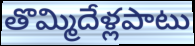
తొమ్మిదేళ్లపాటు